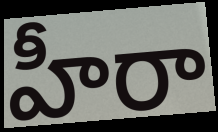
హీరా